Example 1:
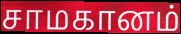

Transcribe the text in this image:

சாமகானம்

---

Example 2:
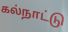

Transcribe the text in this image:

கல்நாட்டு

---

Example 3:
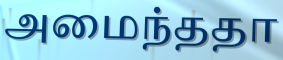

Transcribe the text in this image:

அமைந்ததா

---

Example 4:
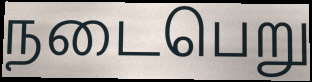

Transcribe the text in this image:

நடைபெறு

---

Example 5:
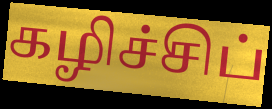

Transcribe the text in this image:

கழிச்சிப்